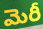
మెరీ